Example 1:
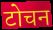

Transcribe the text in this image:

टोचन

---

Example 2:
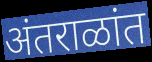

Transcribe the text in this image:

अंतराळांत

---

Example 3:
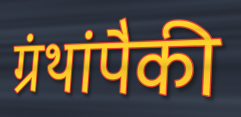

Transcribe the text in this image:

ग्रंथांपैकी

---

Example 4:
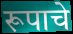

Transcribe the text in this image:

रूपाचे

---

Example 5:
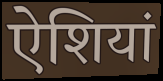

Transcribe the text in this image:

ऐशियां